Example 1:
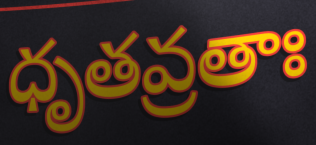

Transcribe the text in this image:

ధృతవ్రతాః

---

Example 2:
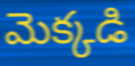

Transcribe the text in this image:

మెక్కడి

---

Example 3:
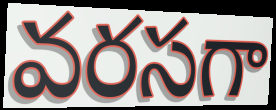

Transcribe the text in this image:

వరసగా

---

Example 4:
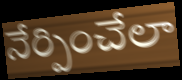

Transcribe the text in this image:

నేర్పించేలా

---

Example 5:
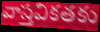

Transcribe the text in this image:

వాస్తవికతకు